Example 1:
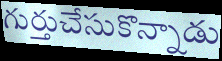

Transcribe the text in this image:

గుర్తుచేసుకొన్నాడు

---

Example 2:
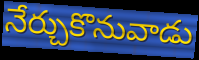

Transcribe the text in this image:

నేర్చుకొనువాడు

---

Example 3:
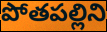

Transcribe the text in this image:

పోతపల్లిని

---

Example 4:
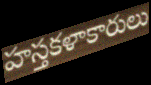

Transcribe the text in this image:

హస్తకళాకారులు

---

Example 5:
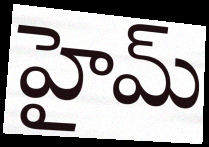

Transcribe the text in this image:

హైమ్